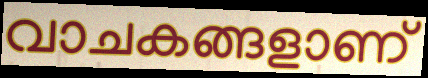
വാചകങ്ങളാണ്